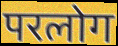
परलोग